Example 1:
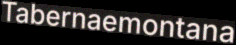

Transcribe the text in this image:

Tabernaemontana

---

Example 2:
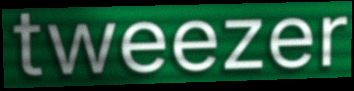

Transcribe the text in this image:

tweezer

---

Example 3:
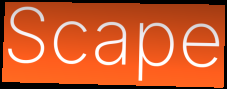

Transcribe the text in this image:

Scape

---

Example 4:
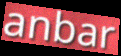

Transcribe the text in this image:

anbar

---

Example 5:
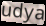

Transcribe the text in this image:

udya